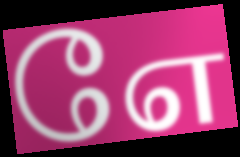
எே